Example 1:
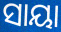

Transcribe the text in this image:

ସାୟା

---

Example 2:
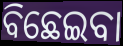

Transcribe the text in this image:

ବିଛେଇବା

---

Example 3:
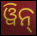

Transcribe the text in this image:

ୱିନ୍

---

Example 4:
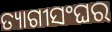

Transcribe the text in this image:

ତ୍ୟାଗୀସଂଘର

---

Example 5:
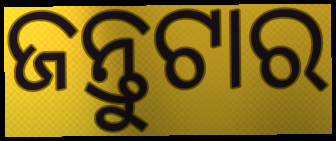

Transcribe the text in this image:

ଜନ୍ତୁଟାର